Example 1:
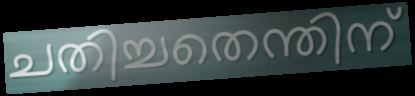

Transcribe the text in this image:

ചതിച്ചതെന്തിന്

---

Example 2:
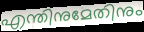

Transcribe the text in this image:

എന്തിനുമേതിനും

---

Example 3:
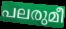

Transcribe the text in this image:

പലരുമീ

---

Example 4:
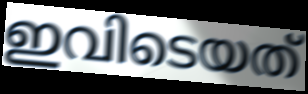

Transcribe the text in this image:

ഇവിടെയത്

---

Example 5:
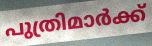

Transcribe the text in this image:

പുത്രിമാർക്ക്